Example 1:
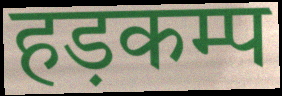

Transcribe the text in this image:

हड़कम्‍प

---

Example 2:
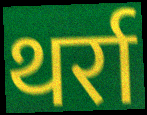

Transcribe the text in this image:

थर्रा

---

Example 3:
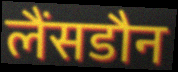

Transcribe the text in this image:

लैंसडौन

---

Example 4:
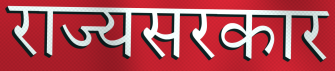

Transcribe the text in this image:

राज्यसरकार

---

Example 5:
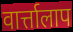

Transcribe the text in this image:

वार्त्तालाप